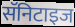
सॅनिटाइज